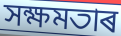
সক্ষমতাৰ